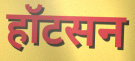
हॉटसन